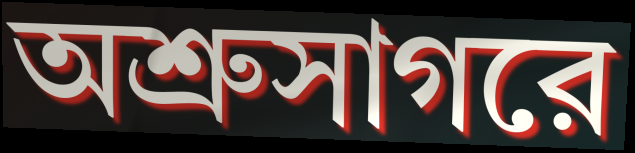
অশ্রুসাগরে